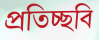
প্রতিচ্ছবি